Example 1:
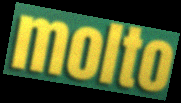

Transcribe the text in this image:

molto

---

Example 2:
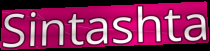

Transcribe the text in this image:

Sintashta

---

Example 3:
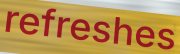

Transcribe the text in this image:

refreshes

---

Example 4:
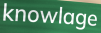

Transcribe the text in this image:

knowlage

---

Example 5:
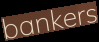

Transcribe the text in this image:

bankers